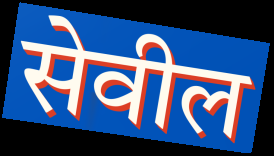
सेवील